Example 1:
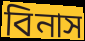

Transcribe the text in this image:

বিনাস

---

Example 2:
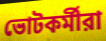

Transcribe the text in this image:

ভোটকর্মীরা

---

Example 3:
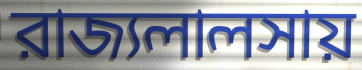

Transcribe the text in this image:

রাজ্যলালসায়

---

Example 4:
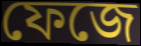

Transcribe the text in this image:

ফেজে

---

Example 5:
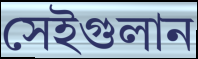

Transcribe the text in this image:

সেইগুলান